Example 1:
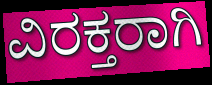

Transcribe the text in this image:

ವಿರಕ್ತರಾಗಿ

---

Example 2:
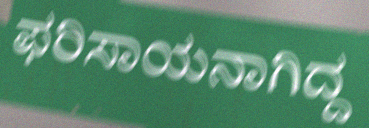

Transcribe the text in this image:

ಫರಿಸಾಯನಾಗಿದ್ದ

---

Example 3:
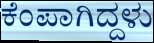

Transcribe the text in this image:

ಕೆಂಪಾಗಿದ್ದಳು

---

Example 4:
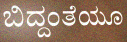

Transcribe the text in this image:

ಬಿದ್ದಂತೆಯೂ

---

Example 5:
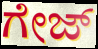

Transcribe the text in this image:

ಗೇಜ್